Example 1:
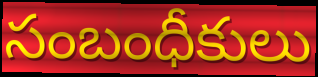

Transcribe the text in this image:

సంబంధీకులు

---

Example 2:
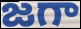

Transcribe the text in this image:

జగా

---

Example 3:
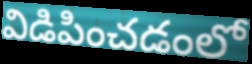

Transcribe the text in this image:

విడిపించడంలో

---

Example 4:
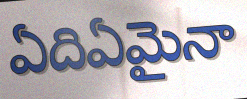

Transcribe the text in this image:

ఏదిఏమైనా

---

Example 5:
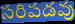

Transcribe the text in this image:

సరిపడవు